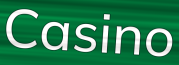
Casino